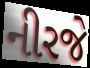
નીરજે